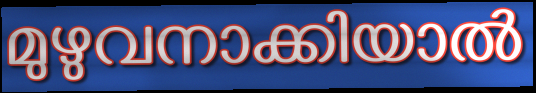
മുഴുവനാക്കിയാൽ